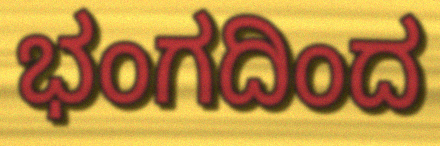
ಭಂಗದಿಂದ